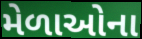
મેળાઓના